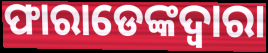
ଫାରାଡେଙ୍କଦ୍ୱାରା